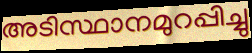
അടിസ്ഥാനമുറപ്പിച്ചു